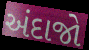
અંદાજો